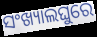
ସଂଖ୍ୟାଲଘୁରେ